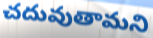
చదువుతామని